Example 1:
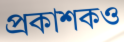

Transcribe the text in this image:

প্রকাশকও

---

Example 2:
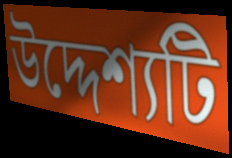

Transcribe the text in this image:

উদ্দেশ্যটি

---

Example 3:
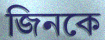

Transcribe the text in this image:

জিনকে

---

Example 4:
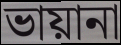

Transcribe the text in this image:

ভায়ানা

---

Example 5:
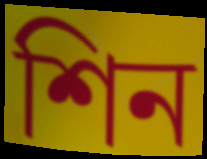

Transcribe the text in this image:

শিন